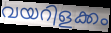
വയറിളക്കം